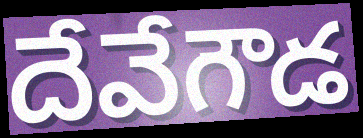
దేవేగౌడ